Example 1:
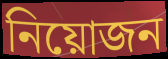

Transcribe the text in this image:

নিয়োজন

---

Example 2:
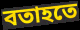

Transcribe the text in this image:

বতাহতে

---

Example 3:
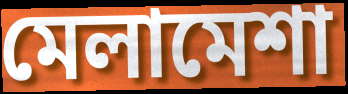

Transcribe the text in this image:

মেলামেশা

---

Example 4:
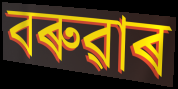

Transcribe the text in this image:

বৰুৱাৰ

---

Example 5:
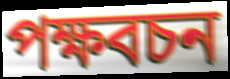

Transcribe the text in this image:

পক্ষবচন